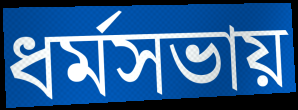
ধর্মসভায়